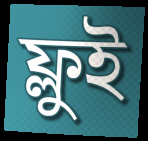
ফ্লুই